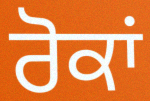
ਰੋਕਾਂ